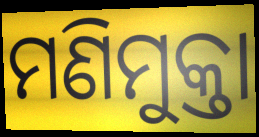
ମଣିମୁକ୍ତା